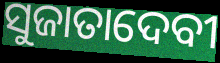
ସୁଜାତାଦେବୀ